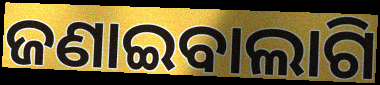
ଜଣାଇବାଲାଗି